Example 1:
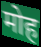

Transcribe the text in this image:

मोह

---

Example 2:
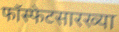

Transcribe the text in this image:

फॉस्फेटसारख्या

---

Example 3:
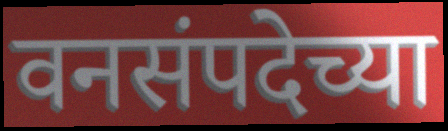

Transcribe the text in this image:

वनसंपदेच्या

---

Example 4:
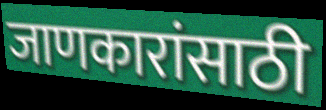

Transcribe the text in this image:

जाणकारांसाठी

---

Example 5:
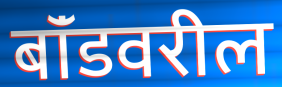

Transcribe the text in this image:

बॉंडवरील